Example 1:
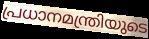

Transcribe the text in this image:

പ്രധാനമന്ത്രിയുടെ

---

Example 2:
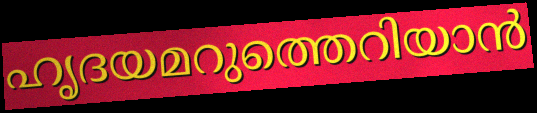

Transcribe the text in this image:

ഹൃദയമറുത്തെറിയാൻ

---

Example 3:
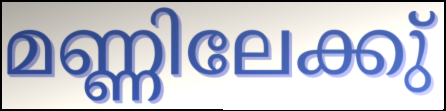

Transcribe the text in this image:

മണ്ണിലേക്കു്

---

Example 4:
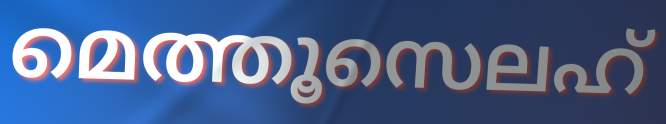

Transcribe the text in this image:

മെത്തൂസെലഹ്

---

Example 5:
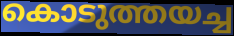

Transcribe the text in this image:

കൊടുത്തയച്ച